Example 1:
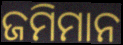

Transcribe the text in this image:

ଜମିମାନ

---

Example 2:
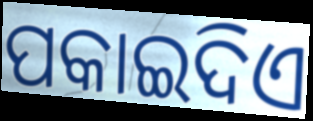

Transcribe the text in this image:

ପକାଇଦିଏ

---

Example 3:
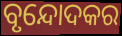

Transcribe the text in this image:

ବୃନ୍ଦୋଦକର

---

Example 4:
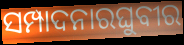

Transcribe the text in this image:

ସମ୍ପାଦନାରଘୁବୀର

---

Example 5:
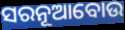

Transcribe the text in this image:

ସରନୂଆବୋଉ